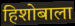
हिशोबाला